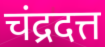
चंद्रदत्त